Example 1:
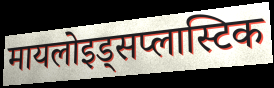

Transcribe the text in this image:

मायलोइड्सप्लास्टिक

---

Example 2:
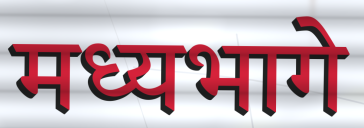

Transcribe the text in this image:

मध्यभागे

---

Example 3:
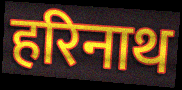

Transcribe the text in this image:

हरिनाथ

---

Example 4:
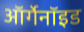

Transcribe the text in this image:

ऑर्गेनॉइड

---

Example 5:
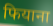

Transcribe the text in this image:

फियाना